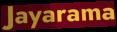
Jayarama